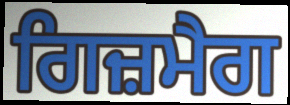
ਗਿਜ਼ਮੈਗ